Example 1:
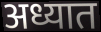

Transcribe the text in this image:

अध्यात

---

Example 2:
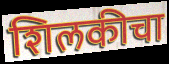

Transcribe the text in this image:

शिलकीचा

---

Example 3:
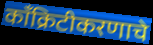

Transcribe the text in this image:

काँक्रिटीकरणाचे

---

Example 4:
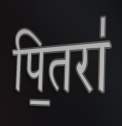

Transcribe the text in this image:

पि॒तरा॑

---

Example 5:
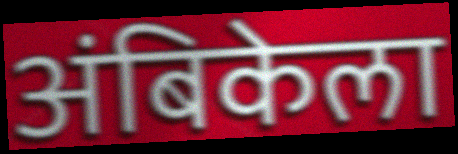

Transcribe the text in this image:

अंबिकेला